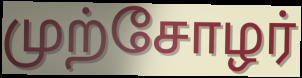
முற்சோழர்